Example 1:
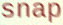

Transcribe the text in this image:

snap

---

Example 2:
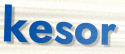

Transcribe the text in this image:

kesor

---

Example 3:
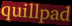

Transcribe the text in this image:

quillpad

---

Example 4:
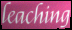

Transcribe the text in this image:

leaching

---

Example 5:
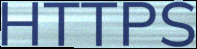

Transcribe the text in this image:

HTTPS